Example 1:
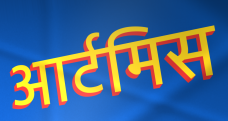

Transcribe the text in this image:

आर्टमिस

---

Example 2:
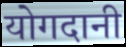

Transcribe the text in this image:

योगदानी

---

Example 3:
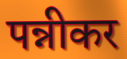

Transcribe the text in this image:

पन्नीकर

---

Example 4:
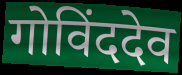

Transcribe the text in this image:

गोविंददेव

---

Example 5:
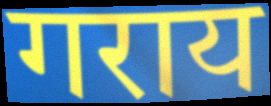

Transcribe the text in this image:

गराय